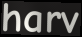
harv